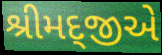
શ્રીમદ્જીએ